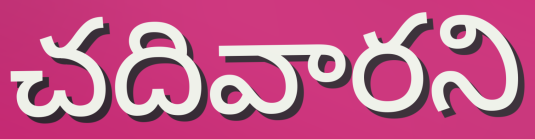
చదివారని